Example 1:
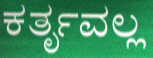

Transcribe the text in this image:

ಕರ್ತೃವಲ್ಲ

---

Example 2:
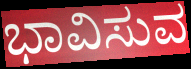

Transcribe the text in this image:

ಭಾವಿಸುವ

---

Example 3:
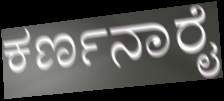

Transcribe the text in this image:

ಕರ್ಣನಾರೈ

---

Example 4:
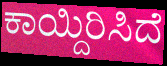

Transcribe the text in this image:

ಕಾಯ್ದಿರಿಸಿದೆ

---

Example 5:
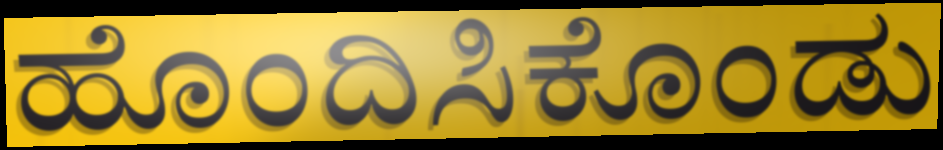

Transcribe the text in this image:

ಹೊಂದಿಸಿಕೊಂಡು